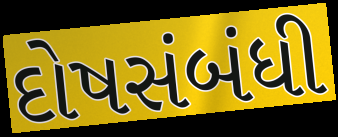
દોષસંબંધી